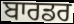
ਬਾਰਡਰ